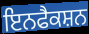
ਇਨਫੈਕਸ਼ਨ